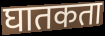
घातकता